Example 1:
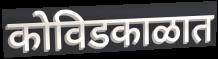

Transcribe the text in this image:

कोविडकाळात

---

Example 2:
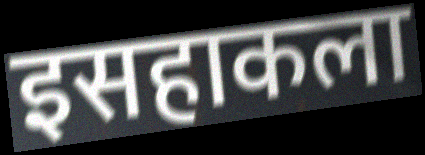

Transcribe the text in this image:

इसहाकला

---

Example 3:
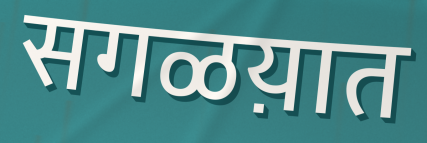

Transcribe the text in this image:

सगळय़ात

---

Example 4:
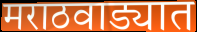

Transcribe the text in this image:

मराठवाड्यात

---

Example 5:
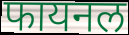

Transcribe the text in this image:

फायनल